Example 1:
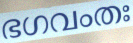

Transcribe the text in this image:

ഭഗവംതഃ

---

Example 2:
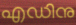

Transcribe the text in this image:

എഡിനു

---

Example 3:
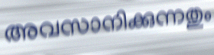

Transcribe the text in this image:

അവസാനിക്കുന്നതും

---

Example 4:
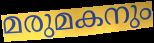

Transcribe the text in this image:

മരുമകനും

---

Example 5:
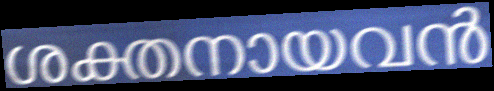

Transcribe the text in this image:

ശക്തനായവൻ